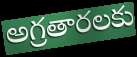
అగ్రతారలకు